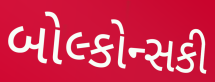
બોલ્કોન્સકી